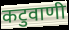
कटुवाणी